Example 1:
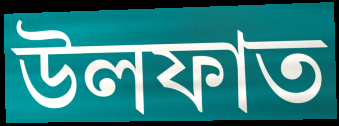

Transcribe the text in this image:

উলফাত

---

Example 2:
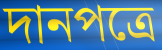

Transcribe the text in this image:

দানপত্রে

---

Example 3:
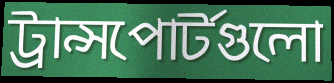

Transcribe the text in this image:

ট্রান্সপোর্টগুলো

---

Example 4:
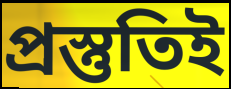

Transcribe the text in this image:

প্রস্তুতিই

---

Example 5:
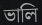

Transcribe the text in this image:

ভালি